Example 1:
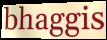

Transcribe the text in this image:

bhaggis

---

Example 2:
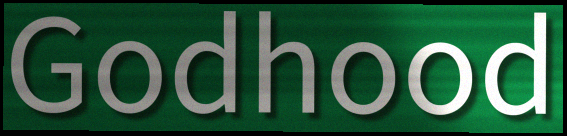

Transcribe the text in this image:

Godhood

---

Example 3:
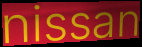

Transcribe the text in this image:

nissan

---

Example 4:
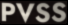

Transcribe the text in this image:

PVSS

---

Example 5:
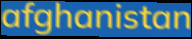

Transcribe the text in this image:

afghanistan